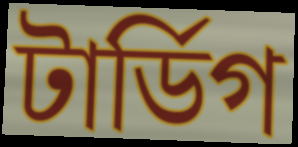
টার্ডিগ